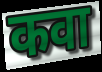
कवा